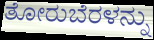
ತೋರುಬೆರಳನ್ನು